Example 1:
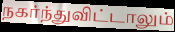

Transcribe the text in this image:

நகர்ந்துவிட்டாலும்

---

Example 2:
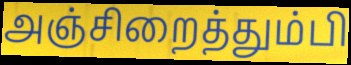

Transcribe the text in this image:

அஞ்சிறைத்தும்பி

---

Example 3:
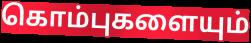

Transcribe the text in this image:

கொம்புகளையும்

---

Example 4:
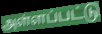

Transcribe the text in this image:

அள்ளப்பட்டு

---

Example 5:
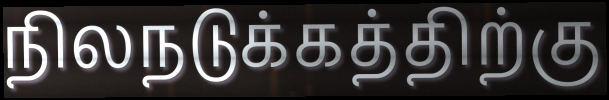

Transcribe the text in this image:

நிலநடுக்கத்திற்கு